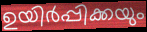
ഉയിർപ്പിക്കയും